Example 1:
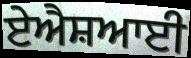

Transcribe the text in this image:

ਏਐਸ਼ਆਈ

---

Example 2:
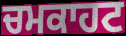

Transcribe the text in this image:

ਚਮਕਾਹਟ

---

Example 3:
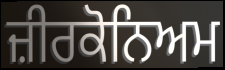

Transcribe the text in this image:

ਜ਼ੀਰਕੋਨਿਅਮ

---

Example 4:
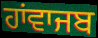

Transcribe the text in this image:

ਹਾਂਵਾਜਬ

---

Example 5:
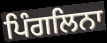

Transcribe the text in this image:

ਪਿੰਗਲਿਨਾ